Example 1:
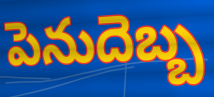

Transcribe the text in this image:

పెనుదెబ్బ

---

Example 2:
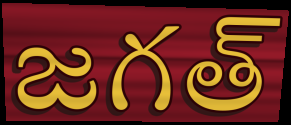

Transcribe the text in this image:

జగత్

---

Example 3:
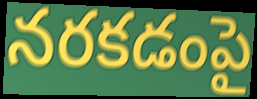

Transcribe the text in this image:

నరకడంపై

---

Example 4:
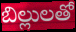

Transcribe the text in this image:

బిల్లులతో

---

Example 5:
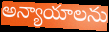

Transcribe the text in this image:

అన్యాయాలను